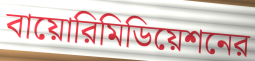
বায়োরিমিডিয়েশনের